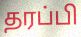
தரப்பி